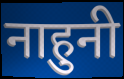
नाहुनी